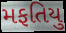
મફતિયુ